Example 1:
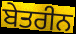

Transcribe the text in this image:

ਬੇਤਰੀਨ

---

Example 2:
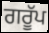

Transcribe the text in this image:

ਗਰੂੱਪ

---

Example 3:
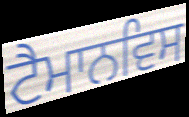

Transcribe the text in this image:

ਟੈਮਾਨਵਿਸ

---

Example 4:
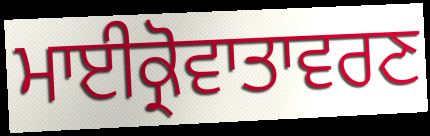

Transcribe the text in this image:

ਮਾਈਕ੍ਰੋਵਾਤਾਵਰਣ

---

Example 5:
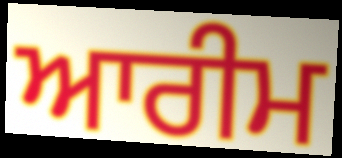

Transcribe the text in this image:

ਆਰੀਮ